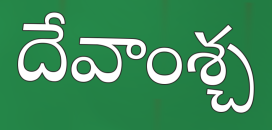
దేవాంశ్చ